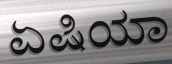
ಏಷಿಯಾ